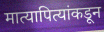
मात्यापित्यांकडून